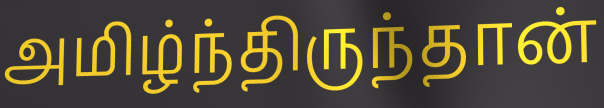
அமிழ்ந்திருந்தான்